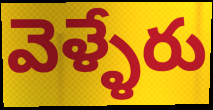
వెళ్ళేరు